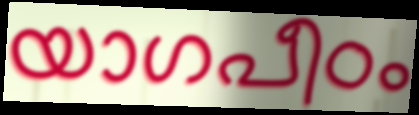
യാഗപീഠം